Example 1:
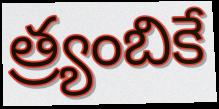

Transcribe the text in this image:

త్ర్యంబికే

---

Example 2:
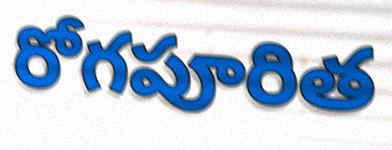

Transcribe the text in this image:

రోగపూరిత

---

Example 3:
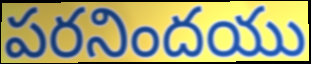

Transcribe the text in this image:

పరనిందయు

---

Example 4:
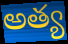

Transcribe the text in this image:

అత్య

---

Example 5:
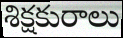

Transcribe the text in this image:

శిక్షకురాలు